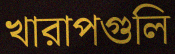
খারাপগুলি